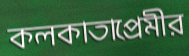
কলকাতাপ্রেমীর